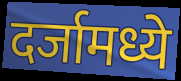
दर्जामध्ये